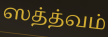
ஸத்த்வம்